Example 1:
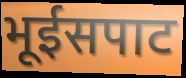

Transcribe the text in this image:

भूईसपाट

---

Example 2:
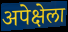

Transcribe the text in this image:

अपेक्षेला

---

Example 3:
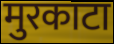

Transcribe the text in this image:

मुरकाटा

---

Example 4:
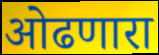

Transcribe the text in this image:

ओढणारा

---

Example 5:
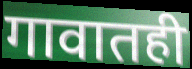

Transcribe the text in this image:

गावातही